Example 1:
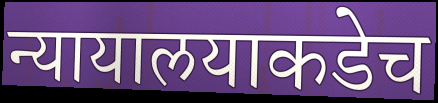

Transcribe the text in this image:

न्यायालयाकडेच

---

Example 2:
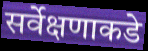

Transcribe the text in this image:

सर्वेक्षणाकडे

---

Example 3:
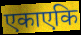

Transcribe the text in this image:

एकाएकि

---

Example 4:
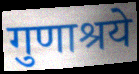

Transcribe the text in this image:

गुणाश्रये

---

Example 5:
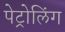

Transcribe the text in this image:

पेट्रोलिंग